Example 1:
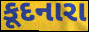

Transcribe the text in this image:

કૂદનારા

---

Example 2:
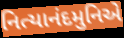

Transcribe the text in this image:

નિત્યાનંદમુનિએ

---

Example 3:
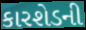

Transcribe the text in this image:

કારશેડની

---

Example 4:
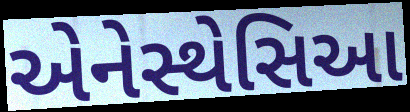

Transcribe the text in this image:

એનેસ્થેસિઆ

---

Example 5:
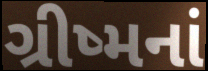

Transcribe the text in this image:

ગ્રીષ્મનાં